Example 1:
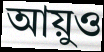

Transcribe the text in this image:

আয়ুও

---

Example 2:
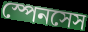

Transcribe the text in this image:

স্পেনসেস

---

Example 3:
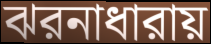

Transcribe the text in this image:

ঝরনাধারায়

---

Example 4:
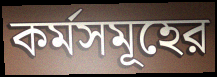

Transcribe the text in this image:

কর্মসমূহের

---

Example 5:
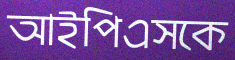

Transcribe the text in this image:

আইপিএসকে